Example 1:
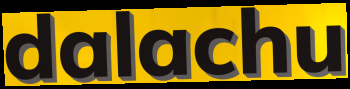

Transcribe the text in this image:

dalachu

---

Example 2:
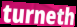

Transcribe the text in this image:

turneth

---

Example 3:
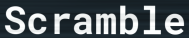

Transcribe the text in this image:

Scramble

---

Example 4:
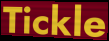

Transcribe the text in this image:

Tickle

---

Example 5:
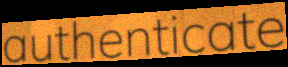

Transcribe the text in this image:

authenticate